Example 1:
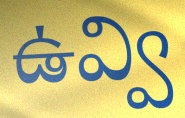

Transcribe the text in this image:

ఉవ్వి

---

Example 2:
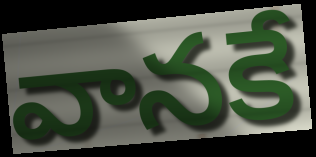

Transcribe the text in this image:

వానకే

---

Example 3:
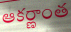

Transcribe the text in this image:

ఆకర్ణాంత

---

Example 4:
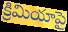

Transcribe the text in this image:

క్రిమియాపై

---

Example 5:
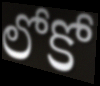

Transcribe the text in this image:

లోకో